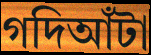
গদিআঁটা